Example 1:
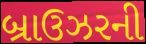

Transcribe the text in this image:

બ્રાઉઝરની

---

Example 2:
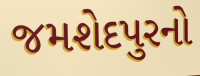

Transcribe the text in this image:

જમશેદપુરનો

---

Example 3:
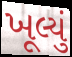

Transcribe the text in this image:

ખૂલ્યું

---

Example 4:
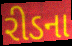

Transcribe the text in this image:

રીડના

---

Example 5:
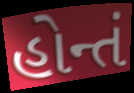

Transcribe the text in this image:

હોન્તં